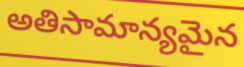
అతిసామాన్యమైన